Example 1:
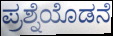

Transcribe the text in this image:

ಪ್ರಶ್ನೆಯೊಡನೆ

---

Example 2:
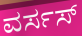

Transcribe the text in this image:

ವರ್ಸಸ್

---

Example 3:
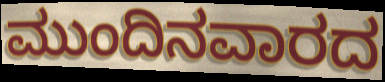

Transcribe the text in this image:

ಮುಂದಿನವಾರದ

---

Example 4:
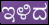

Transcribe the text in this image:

ಇಳಿದ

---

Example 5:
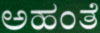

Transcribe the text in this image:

ಅಹಂತೆ